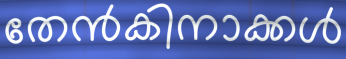
തേൻകിനാക്കൾ